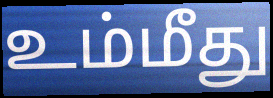
உம்மீது